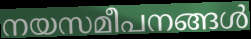
നയസമീപനങ്ങൾ